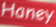
Haney